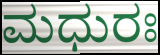
ಮಧುರಃ